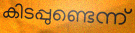
കിടപ്പുണ്ടെന്ന്